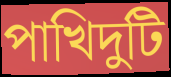
পাখিদুটি